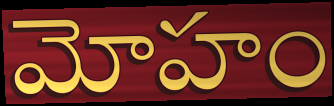
మోహం